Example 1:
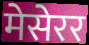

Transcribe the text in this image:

मेसेरर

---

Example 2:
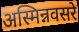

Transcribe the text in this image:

अस्मिन्नवसरे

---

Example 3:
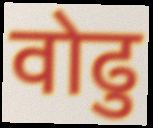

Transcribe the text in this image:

वोढु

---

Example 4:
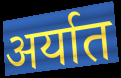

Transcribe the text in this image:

अर्यात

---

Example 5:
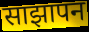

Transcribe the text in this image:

साझापन